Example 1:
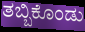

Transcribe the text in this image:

ತಬ್ಬಿಕೊಂಡು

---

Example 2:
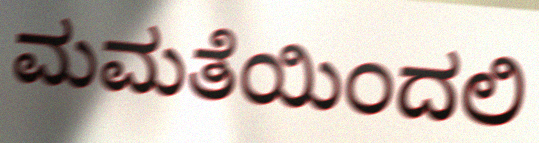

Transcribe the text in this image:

ಮಮತೆಯಿಂದಲಿ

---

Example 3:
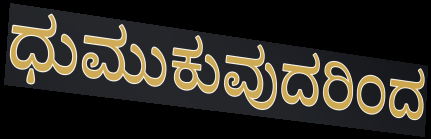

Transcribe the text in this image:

ಧುಮುಕುವುದರಿಂದ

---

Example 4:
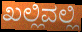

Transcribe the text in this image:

ಖಲ್ಲಿವಲ್ಲಿ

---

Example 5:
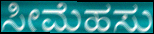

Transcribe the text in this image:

ಸೀಮೆಹಸು